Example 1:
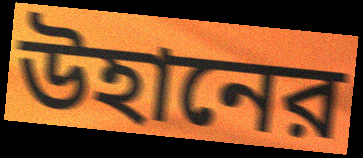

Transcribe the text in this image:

উহানের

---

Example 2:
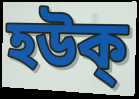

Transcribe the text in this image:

হউক্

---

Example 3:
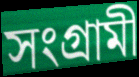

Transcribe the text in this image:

সংগ্রামী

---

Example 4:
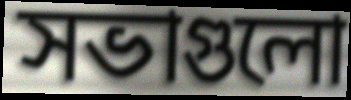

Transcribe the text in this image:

সভাগুলো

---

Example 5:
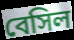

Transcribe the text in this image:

বেসিল